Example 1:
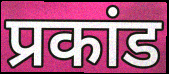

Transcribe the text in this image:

प्रकांड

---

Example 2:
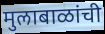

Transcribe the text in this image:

मुलाबाळांची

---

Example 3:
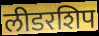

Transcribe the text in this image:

लीडरशिप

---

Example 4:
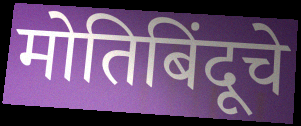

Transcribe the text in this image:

मोतिबिंदूचे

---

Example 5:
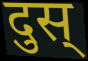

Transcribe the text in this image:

दुस्